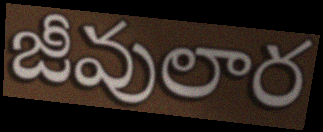
జీవులార